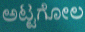
ಅಟ್ಟಗೋಲ